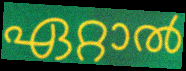
ഏറ്റാൽ